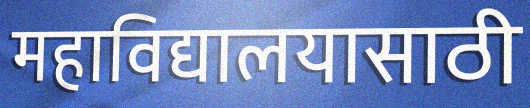
महाविद्यालयासाठी